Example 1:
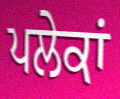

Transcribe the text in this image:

ਪਲੇਕਾਂ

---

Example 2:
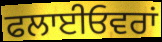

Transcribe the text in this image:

ਫਲਾਈਓਵਰਾਂ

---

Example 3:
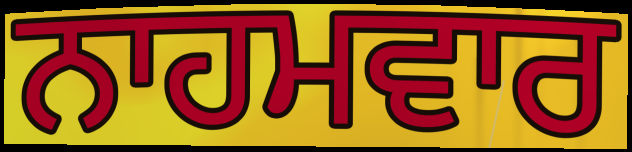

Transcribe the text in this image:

ਨਾਹਮਵਾਰ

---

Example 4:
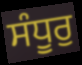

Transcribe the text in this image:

ਸੰਧੂਰੁ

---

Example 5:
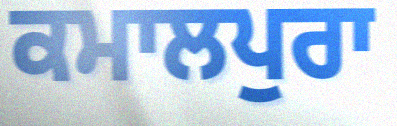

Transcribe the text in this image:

ਕਮਾਲਪੁਰਾ